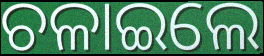
ଚଳାଇଲେ